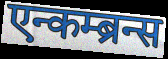
एन्कम्ब्रन्स